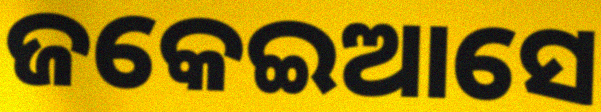
ଜକେଇଆସେ